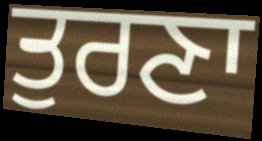
ਤੁਰਣਾ